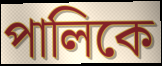
পালিকে